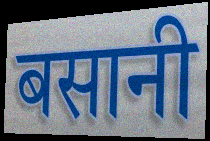
बसानी